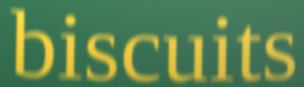
biscuits